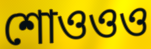
শোওওও